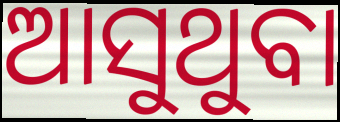
ଆସୁଥୁବା